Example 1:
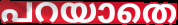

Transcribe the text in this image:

പറയാതെ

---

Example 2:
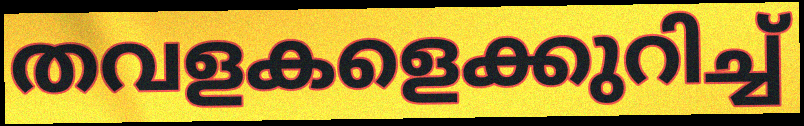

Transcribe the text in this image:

തവളകളെക്കുറിച്ച്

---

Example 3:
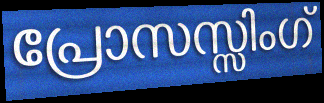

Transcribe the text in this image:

പ്രോസസ്സിംഗ്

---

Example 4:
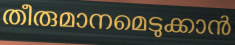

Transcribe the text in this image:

തീരുമാനമെടുക്കാൻ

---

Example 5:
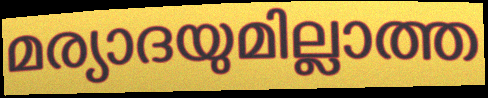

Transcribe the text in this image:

മര്യാദയുമില്ലാത്ത